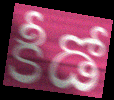
కీడో